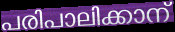
പരിപാലിക്കാന്